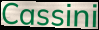
Cassini